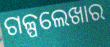
ଗଳ୍ପଲେଖାର